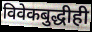
विवेकबुद्धीही